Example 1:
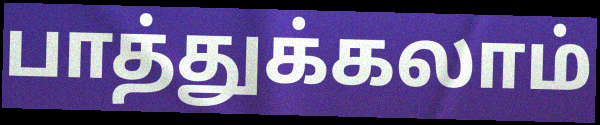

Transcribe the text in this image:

பாத்துக்கலாம்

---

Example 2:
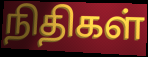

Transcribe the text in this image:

நிதிகள்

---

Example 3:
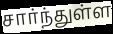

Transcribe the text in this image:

சார்ந்துள்ள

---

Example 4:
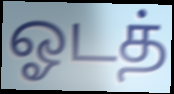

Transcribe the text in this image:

ஓடத்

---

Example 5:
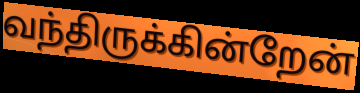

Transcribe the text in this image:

வந்திருக்கின்றேன்